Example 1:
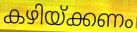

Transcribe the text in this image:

കഴിയ്ക്കണം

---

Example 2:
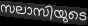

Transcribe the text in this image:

സലാസിയുടെ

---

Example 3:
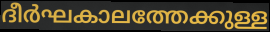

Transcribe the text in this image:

ദീർഘകാലത്തേക്കുള്ള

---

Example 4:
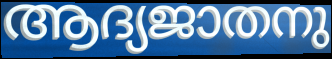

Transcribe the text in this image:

ആദ്യജാതനു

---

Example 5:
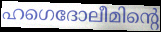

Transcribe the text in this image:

ഹഗെദോലീമിന്റെ